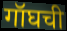
गॉघची